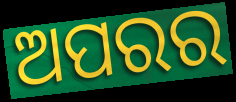
ଅପରର